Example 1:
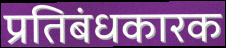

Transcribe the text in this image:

प्रतिबंधकारक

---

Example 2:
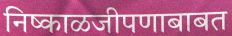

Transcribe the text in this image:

निष्काळजीपणाबाबत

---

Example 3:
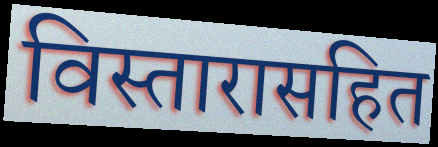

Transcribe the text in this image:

विस्तारासहित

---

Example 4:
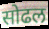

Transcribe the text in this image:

सोढल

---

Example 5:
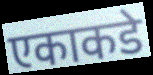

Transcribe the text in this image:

एकाकडे